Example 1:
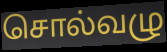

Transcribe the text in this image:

சொல்வழு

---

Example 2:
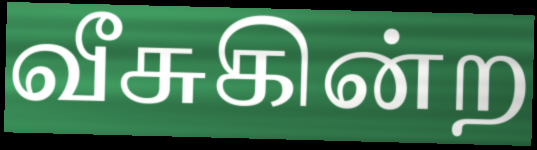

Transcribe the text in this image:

வீசுகின்ற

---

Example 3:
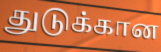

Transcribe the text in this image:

துடுக்கான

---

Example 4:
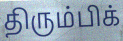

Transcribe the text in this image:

திரும்பிக்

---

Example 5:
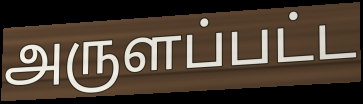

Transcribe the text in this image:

அருளப்பட்ட